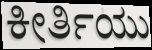
ಕೀರ್ತಿಯು